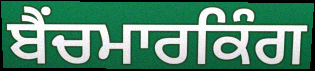
ਬੈਂਚਮਾਰਕਿੰਗ